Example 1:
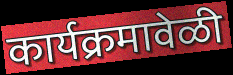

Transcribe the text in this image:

कार्यक्रमावेळी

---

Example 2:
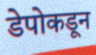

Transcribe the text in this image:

डेपोकडून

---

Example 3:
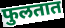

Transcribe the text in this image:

फुलतात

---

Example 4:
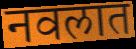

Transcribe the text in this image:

नवलात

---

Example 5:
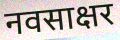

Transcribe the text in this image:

नवसाक्षर